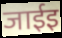
जाईइ